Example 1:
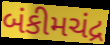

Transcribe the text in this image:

બંકીમચંદ્ર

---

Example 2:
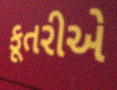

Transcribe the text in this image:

કૂતરીએ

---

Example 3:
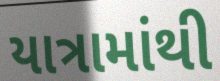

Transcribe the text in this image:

યાત્રામાંથી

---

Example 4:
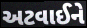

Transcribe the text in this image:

અટવાઈને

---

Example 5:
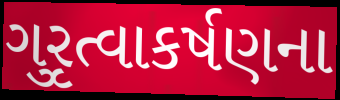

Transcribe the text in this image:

ગુરૃત્વાકર્ષણના